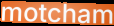
motcham